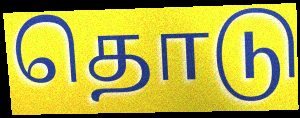
தொடு